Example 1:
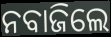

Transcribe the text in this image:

ନବାଜିଲେ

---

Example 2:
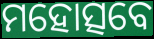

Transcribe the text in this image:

ମହୋତ୍ସବେ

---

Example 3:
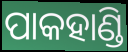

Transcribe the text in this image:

ପାକହାଣ୍ଡି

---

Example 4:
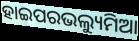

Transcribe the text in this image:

ହାଇପରଭଲ୍ୟୁମିଆ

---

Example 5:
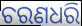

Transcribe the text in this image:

ଚରଣଧରି